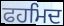
ਫਹਮਿਦ